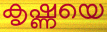
കൃഷ്ണയെ